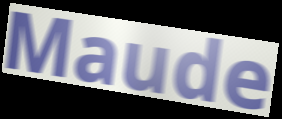
Maude